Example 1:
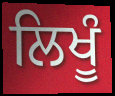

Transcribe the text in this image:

ਲਿਖੂੰ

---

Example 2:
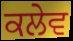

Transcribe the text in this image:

ਕਲੇਵ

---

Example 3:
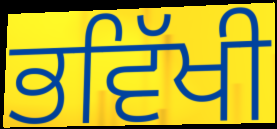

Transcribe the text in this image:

ਭਵਿੱਖੀ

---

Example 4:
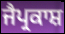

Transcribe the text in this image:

ਜੈਪ੍ਰਕਾਸ਼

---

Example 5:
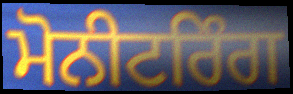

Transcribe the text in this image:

ਮੋਨੀਟਰਿੰਗ